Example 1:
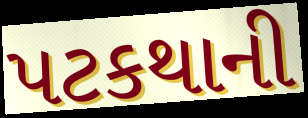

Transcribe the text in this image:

પટકથાની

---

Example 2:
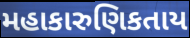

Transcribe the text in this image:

મહાકારુણિકતાય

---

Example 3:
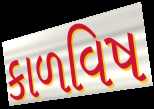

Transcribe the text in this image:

કાળવિષ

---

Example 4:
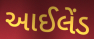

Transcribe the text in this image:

આઈલેંડ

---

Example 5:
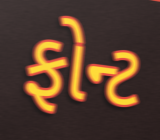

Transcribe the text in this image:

ફોન્ટ